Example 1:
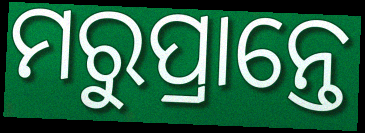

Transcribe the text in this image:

ମରୁପ୍ରାନ୍ତେ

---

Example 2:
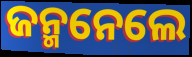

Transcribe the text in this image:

ଜନ୍ମନେଲେ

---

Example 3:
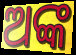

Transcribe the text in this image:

ଅଙ୍କ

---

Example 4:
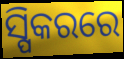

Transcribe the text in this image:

ସ୍ପିକରରେ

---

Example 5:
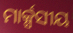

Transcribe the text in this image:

ମାର୍କ୍ସସୀୟ